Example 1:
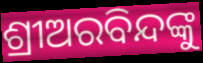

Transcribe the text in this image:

ଶ୍ରୀଅରବିନ୍ଦଙ୍କୁ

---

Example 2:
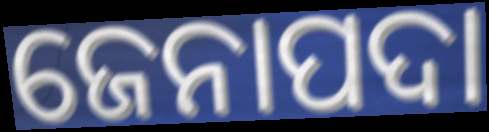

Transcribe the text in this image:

ଜେନାପଦା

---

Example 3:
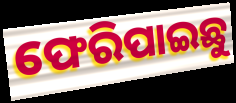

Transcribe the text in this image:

ଫେରିପାଇଛୁ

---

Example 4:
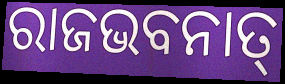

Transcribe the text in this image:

ରାଜଭବନାତ୍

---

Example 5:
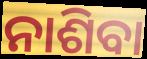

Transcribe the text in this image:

ନାଶିବା